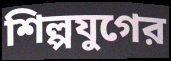
শিল্পযুগের